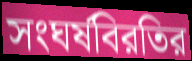
সংঘর্ষবিরতির